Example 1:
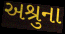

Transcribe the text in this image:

અશ્રુના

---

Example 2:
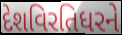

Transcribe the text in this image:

દેશવિરતિધરને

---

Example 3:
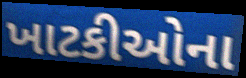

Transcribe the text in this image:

ખાટકીઓના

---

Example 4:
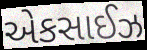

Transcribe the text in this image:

એકસાઈઝ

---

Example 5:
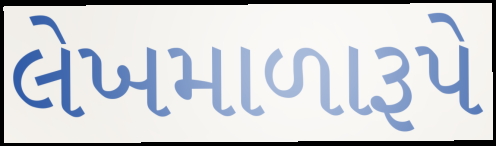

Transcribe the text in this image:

લેખમાળારૂપે